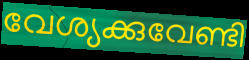
വേശ്യക്കുവേണ്ടി